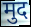
मुद